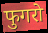
फुगरो